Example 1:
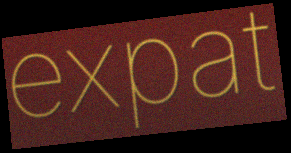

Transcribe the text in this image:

expat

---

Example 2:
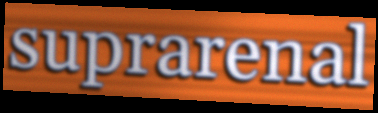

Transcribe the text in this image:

suprarenal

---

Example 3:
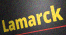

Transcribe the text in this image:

Lamarck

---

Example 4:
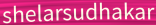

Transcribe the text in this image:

shelarsudhakar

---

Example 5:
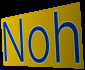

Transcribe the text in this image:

Noh